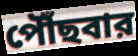
পৌঁছবার